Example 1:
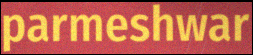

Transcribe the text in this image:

parmeshwar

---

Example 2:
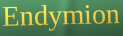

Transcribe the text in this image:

Endymion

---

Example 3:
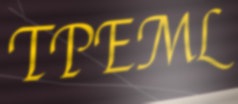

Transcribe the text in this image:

TPEML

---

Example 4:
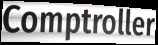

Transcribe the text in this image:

Comptroller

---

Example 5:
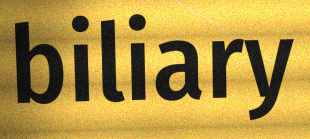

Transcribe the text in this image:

biliary